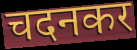
चदनकर